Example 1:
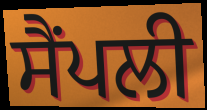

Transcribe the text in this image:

ਸੈਂਪਲੀ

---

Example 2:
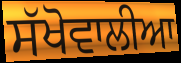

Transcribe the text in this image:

ਸੱਖੋਵਾਲੀਆ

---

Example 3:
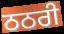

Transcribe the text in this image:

ਠਠਰੀ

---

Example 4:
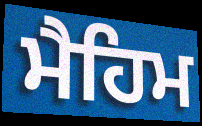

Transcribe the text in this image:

ਮੈਹਿਮ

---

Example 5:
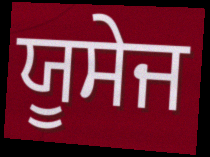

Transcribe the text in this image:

ਯੂਸੇਜ